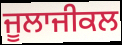
ਜੂਲਾਜੀਕਲ